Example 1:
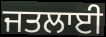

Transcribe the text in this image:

ਜਤਲਾਈ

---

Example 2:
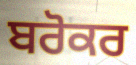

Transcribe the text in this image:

ਬਰੋਕਰ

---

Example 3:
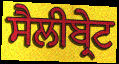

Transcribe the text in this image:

ਸੈਲੀਬ੍ਰੇਟ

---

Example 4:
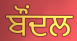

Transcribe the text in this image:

ਬੌਂਦਲ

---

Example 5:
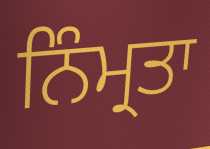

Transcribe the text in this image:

ਨਿੰਮ੍ਰਤਾ